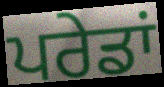
ਪਰੇਡਾਂ